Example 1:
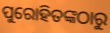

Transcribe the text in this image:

ପୁରୋହିତଙ୍କଠାରୁ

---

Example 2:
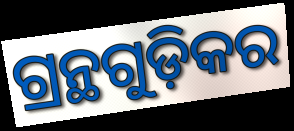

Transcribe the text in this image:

ଗ୍ରନ୍ଥଗୁଡ଼ିକର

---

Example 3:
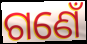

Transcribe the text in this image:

ଗଣେଁ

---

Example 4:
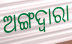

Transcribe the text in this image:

ଅଙ୍ଗଦ୍ଵାରା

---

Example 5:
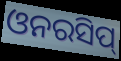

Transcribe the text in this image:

ଓନରସିପ୍